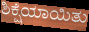
ಶಿಕ್ಷೆಯಾಯಿತು